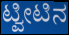
ಟ್ವೀಟಿನ